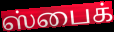
ஸ்பைக்